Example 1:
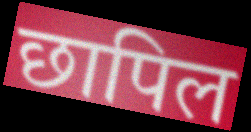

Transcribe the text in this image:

छापिल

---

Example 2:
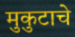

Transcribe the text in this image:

मुकुटाचे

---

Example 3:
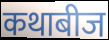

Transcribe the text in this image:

कथाबीज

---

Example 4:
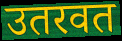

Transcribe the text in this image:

उतरवत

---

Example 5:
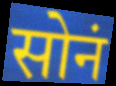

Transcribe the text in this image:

सोनं